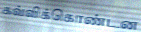
கவ்விக்கொண்டன